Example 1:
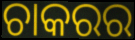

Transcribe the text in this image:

ଚାକରର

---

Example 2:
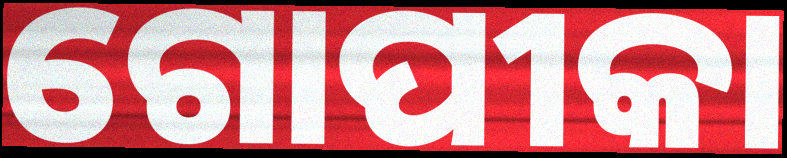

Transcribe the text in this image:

ଗୋପୀକା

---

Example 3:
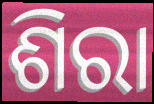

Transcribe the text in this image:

ଶିରା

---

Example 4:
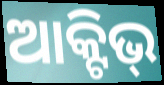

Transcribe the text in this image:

ଆକ୍ଟିଭ୍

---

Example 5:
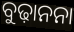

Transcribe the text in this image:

ବୁଢ଼ାନନା